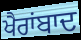
ਖੈਰਾਂਬਾਦ